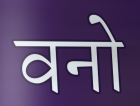
वनो